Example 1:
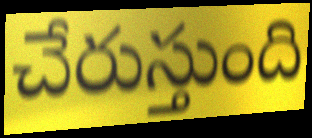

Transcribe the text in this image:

చేరుస్తుంది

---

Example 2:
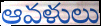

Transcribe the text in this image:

ఆవళులు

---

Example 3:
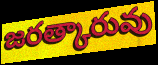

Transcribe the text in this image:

జరత్కారువు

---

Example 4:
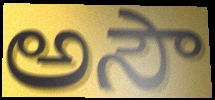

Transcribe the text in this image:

అసౌ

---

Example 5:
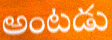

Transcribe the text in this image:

అంటడు